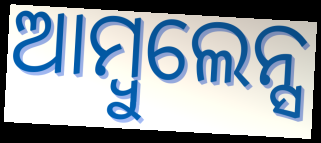
ଆମ୍ବୁଲେନ୍ସ